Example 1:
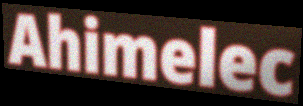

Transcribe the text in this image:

Ahimelec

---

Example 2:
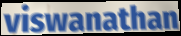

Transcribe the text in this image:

viswanathan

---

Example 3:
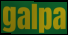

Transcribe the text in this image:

galpa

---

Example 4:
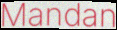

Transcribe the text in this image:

Mandan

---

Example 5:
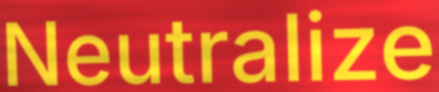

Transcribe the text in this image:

Neutralize